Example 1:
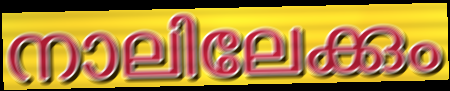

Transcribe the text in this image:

നാലിലേക്കും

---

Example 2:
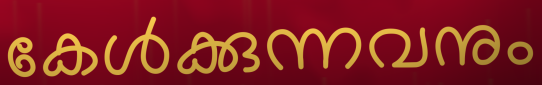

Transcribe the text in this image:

കേൾക്കുന്നവനും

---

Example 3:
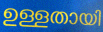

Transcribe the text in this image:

ഉള്ളതായി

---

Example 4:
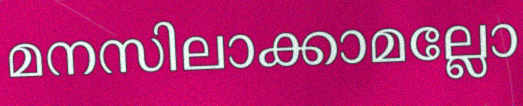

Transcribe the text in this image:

മനസിലാക്കാമല്ലോ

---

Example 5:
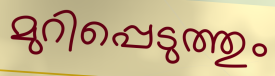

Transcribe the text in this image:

മുറിപ്പെടുത്തും